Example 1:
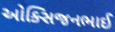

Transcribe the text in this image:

ઓક્સિજનભાઈ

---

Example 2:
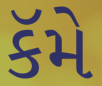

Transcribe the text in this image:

કૅમે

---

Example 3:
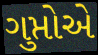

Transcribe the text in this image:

ગુપ્તોએ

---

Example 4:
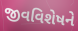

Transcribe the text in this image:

જીવવિશેષને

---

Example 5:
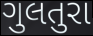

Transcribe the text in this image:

ગુલતુરા